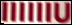
IIIIIIU